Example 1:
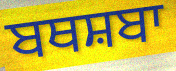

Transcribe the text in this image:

ਬਥਸ਼ਬਾ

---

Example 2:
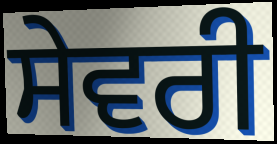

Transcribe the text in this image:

ਸੇਵਰੀ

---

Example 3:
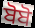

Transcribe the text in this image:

ਬੋਬੋ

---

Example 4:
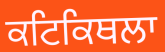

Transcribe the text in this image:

ਕਟਿਕਿਥਲਾ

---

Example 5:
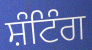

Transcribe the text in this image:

ਸ਼ੰਟਿੰਗ